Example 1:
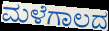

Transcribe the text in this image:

ಮಳೆಗಾಲದ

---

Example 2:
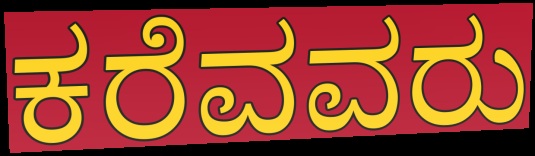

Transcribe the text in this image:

ಕರೆವವರು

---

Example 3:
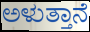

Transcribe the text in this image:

ಅಳುತ್ತಾನೆ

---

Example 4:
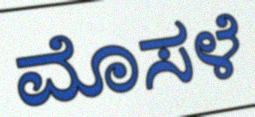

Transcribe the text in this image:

ಮೊಸಳೆ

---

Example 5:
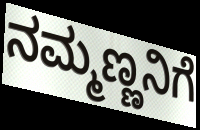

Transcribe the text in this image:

ನಮ್ಮಣ್ಣನಿಗೆ